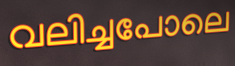
വലിച്ചപോലെ